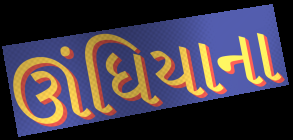
ઊંધિયાના